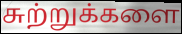
சுற்றுக்களை